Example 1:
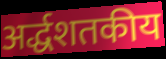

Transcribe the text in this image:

अर्द्धशतकीय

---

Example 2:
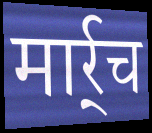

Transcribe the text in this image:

मार्र्च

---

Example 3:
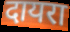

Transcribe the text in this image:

दायरा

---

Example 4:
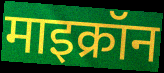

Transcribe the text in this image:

माइक्रॉन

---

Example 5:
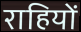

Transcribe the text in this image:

राहियों